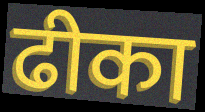
ढीका